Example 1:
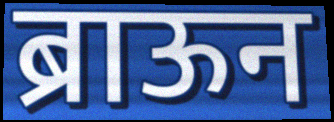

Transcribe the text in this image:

ब्राऊन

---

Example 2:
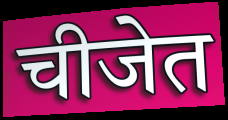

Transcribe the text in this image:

चीजेत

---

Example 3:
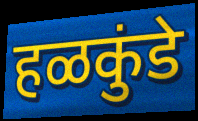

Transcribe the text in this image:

हळकुंडे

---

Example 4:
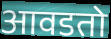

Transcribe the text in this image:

आवडतो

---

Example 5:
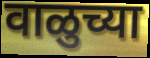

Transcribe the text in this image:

वाळुच्या